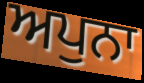
ਅਪੁਨਾ